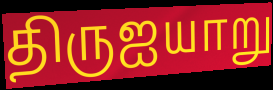
திருஐயாறு